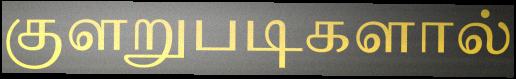
குளறுபடிகளால்